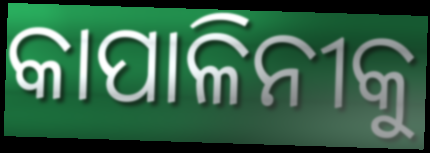
କାପାଳିନୀକୁ